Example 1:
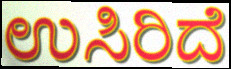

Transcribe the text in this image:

ಉಸಿರಿದೆ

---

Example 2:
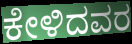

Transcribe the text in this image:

ಕೇಳಿದವರ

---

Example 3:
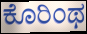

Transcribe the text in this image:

ಕೊರಿಂಥ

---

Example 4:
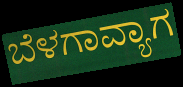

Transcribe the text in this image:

ಬೆಳಗಾವ್ಯಾಗ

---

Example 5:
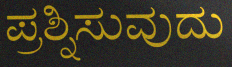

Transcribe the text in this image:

ಪ್ರಶ್ನಿಸುವುದು